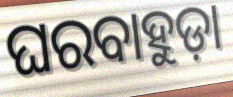
ଘରବାହୁଡ଼ା